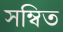
সম্বিত